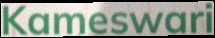
Kameswari